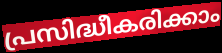
പ്രസിദ്ധീകരിക്കാം